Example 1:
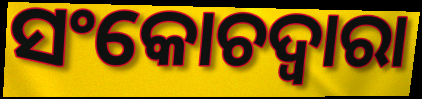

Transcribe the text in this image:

ସଂକୋଚଦ୍ୱାରା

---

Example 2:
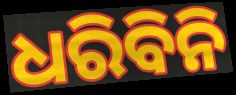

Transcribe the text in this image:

ଧରିବିନି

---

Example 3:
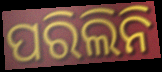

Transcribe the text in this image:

ପରିଲିନି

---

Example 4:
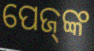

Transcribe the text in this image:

ପେଜ୍‌ଙ୍କ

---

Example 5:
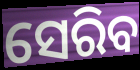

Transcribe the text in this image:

ସେରିବ